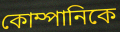
কোম্পানিকে